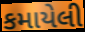
કમાયેલી